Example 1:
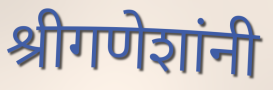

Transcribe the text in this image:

श्रीगणेशांनी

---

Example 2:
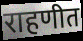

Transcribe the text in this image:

राहणीत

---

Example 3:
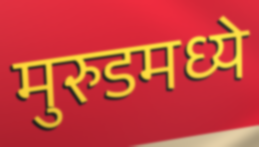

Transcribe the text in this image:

मुरुडमध्ये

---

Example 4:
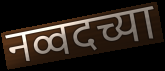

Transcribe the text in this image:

नव्वदच्या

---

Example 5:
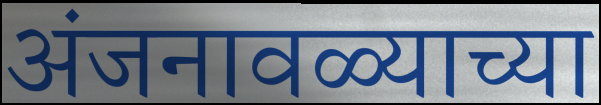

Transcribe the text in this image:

अंजनावळ्याच्या